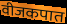
वीजकपात